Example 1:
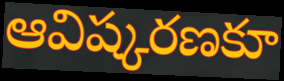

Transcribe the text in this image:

ఆవిష్కరణకూ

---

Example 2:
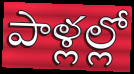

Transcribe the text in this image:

పాళ్లల్లో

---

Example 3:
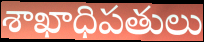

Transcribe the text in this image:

శాఖాధిపతులు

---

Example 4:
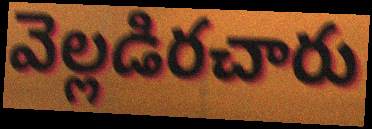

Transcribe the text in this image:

వెల్లడిరచారు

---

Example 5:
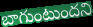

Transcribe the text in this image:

బాగుంటుందని